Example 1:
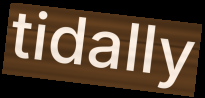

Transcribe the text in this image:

tidally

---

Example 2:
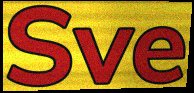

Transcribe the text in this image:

Sve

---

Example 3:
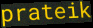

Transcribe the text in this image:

prateik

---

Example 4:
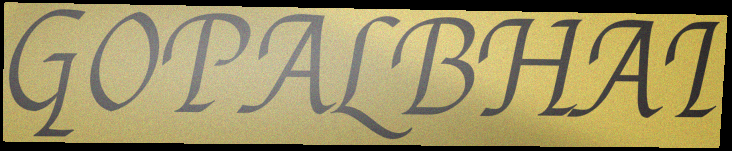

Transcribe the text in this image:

GOPALBHAI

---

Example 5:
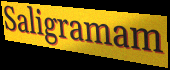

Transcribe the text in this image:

Saligramam